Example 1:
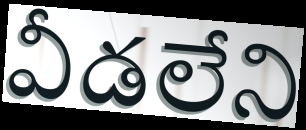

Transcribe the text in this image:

వీడలేని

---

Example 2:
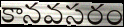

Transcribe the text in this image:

కానవసరం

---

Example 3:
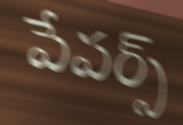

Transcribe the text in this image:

పేపర్స్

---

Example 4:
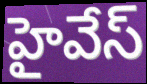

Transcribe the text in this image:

హైవేస్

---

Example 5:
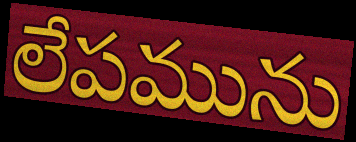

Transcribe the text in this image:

లేపమును